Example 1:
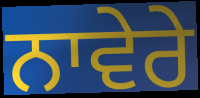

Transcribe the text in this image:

ਨਾਵੇਰੇ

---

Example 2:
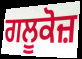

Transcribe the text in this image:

ਗਲੂਕੋਜ਼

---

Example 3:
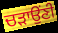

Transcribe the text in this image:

ਚੜਾਉਂਣੀ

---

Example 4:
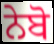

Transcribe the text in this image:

ਨੇਬੋ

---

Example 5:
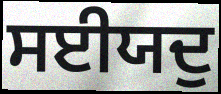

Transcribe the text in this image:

ਸਈਯਦੁ